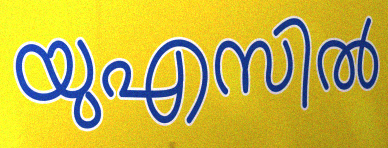
യുഎസിൽ